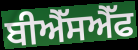
ਬੀਐੱਸਐੱਫ